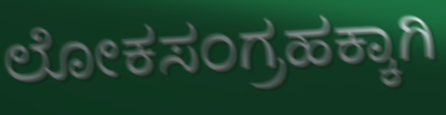
ಲೋಕಸಂಗ್ರಹಕ್ಕಾಗಿ